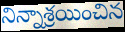
నిన్నాశ్రయించిన